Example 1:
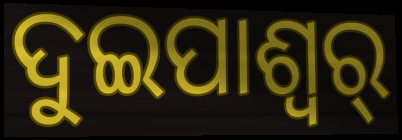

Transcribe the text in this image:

ଦୁଇପାଶ୍ୱର୍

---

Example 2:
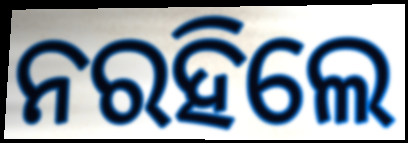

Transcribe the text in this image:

ନରହିଲେ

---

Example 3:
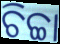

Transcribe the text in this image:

ଚିଚ୍ଚା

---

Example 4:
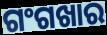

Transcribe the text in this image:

ଗଂଗଖାର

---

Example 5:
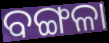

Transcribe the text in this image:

ବଙ୍ଗଳା